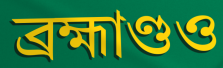
ব্রহ্মাণ্ডও